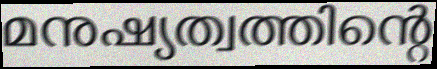
മനുഷ്യത്വത്തിന്റെ